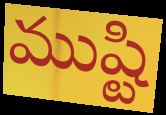
ముష్టి